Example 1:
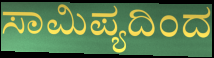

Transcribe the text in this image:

ಸಾಮಿಪ್ಯದಿಂದ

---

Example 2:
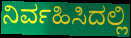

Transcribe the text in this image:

ನಿರ್ವಹಿಸಿದಲ್ಲಿ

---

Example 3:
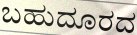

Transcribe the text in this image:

ಬಹುದೂರದ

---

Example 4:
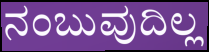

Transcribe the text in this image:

ನಂಬುವುದಿಲ್ಲ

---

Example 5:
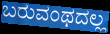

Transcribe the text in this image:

ಬರುವಂಥದಲ್ಲ